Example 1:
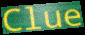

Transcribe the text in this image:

Clue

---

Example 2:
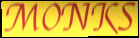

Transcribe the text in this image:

MONKS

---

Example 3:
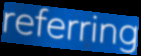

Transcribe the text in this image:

referring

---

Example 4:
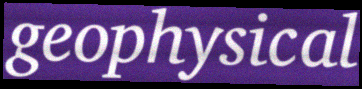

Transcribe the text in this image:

geophysical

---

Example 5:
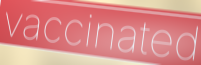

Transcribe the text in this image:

vaccinated